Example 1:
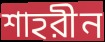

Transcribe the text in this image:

শাহরীন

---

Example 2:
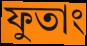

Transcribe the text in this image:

ফুতাং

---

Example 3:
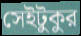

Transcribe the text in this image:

সেইটুকুর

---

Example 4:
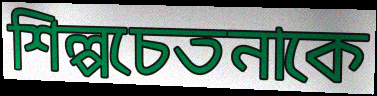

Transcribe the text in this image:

শিল্পচেতনাকে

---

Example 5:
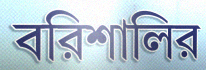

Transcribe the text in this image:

বরিশালির